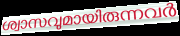
ശ്വാസവുമായിരുന്നവർ